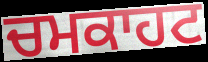
ਚਮਕਾਹਟ